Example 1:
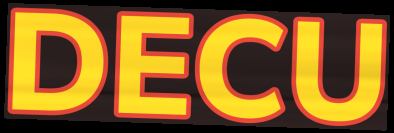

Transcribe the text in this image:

DECU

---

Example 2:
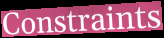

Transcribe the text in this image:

Constraints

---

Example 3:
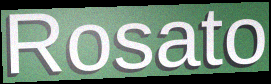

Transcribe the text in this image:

Rosato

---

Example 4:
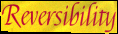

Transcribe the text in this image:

Reversibility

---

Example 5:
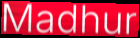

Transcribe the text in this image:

Madhur